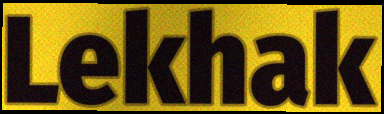
Lekhak